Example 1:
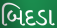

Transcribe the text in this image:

બિદડા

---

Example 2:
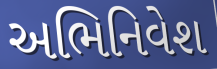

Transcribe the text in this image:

અભિનિવેશ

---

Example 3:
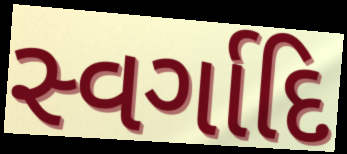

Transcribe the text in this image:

સ્વર્ગાદિ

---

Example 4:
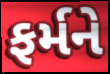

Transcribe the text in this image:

ફર્મને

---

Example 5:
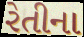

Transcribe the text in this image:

રેતીના